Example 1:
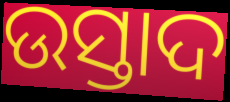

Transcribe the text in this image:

ଉସ୍ତାଦ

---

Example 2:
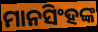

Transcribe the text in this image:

ମାନସିଂହଙ୍କ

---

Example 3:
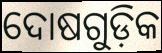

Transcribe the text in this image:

ଦୋଷଗୁଡ଼ିକ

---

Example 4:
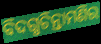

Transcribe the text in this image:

ବିଦଗ୍ଧଚିନ୍ତାମଣିର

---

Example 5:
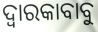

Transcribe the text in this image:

ଦ୍ୱାରକାବାବୁ